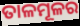
ତାଳମୂଳର